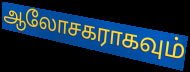
ஆலோசகராகவும்